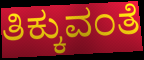
ತಿಕ್ಕುವಂತೆ